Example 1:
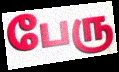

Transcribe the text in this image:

பேரு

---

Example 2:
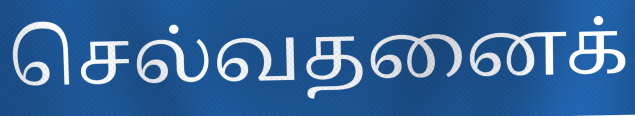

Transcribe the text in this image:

செல்வதனைக்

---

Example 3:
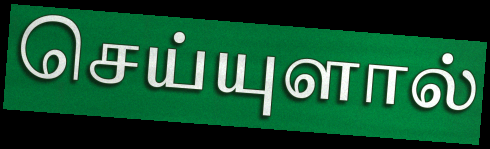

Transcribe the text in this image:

செய்யுளால்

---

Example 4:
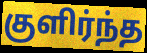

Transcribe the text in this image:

குளிர்ந்த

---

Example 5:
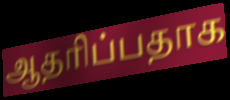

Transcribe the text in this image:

ஆதரிப்பதாக